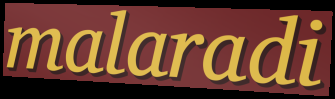
malaradi